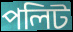
পলিট